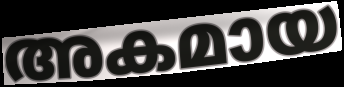
അകമായ